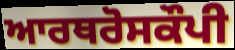
ਆਰਥਰੋਸਕੌਪੀ